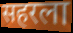
सहरला